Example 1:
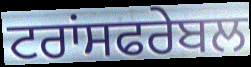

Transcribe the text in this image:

ਟਰਾਂਸਫਰੇਬਲ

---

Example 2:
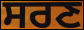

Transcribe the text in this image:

ਸਰਣ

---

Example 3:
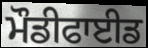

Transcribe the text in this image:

ਮੌਡੀਫਾਈਡ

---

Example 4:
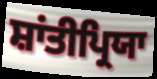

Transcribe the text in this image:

ਸ਼ਾਂਤੀਪ੍ਰਿਯਾ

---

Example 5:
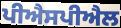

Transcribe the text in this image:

ਪੀਐਸਪੀਐਲ